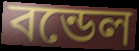
বন্ডেল